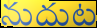
నుదుట